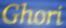
Ghori